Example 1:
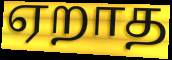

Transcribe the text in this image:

ஏறாத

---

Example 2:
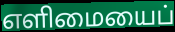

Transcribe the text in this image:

எளிமையைப்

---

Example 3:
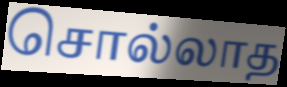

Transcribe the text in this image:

சொல்லாத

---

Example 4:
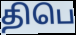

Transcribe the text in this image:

திபெ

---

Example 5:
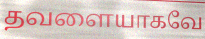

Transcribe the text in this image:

தவளையாகவே